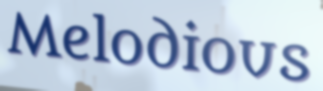
Melodious